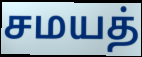
சமயத்